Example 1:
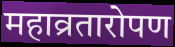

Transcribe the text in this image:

महाव्रतारोपण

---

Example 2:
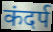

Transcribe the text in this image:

कंदर्प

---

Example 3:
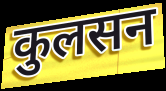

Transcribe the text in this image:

कुलसन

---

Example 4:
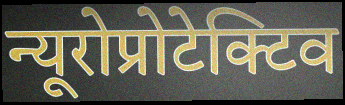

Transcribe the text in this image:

न्यूरोप्रोटेक्टिव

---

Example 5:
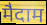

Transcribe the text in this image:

मैदाम